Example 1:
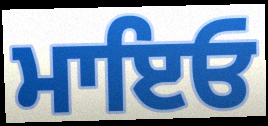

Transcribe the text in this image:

ਮਾਇਓ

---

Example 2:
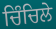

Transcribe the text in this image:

ਚਿੰਚਿਲੇ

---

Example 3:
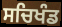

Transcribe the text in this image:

ਸਚਿਖੰਡ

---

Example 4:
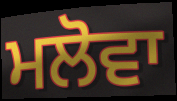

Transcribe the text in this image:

ਮਲੋਵਾ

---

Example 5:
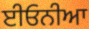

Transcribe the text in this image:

ਈਓਨੀਆ